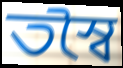
তস্বৈ